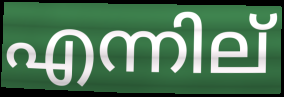
എന്നില്